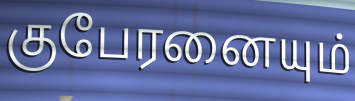
குபேரனையும்